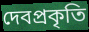
দেবপ্রকৃতি